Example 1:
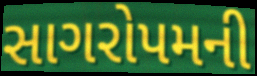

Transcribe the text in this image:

સાગરોપમની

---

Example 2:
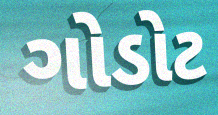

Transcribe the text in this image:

ગોડોટ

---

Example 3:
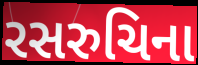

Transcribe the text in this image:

રસરુચિના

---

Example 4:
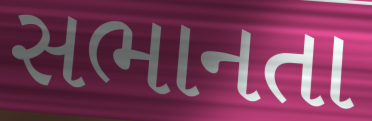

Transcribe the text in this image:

સભાનતા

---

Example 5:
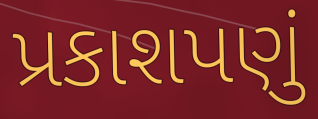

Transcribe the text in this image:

પ્રકાશપણું